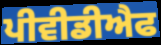
ਪੀਵੀਡੀਐਫ